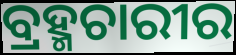
ବ୍ରହ୍ମଚାରୀର